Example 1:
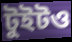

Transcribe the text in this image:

টুইটও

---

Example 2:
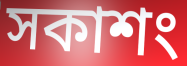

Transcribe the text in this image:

সকাশং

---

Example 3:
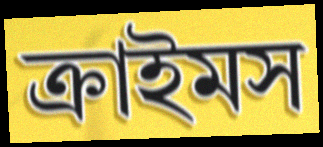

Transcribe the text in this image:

ক্রাইমস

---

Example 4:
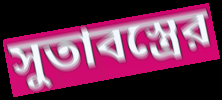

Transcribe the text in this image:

সুতাবস্ত্রের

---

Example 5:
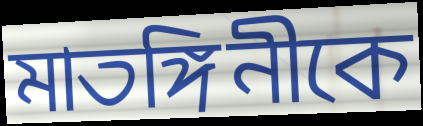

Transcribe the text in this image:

মাতঙ্গিনীকে